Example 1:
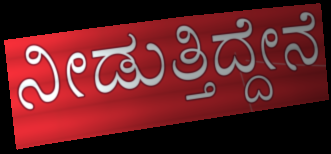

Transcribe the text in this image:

ನೀಡುತ್ತಿದ್ದೇನೆ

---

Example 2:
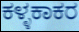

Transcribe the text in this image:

ಕಳ್ಳಕಾಕರ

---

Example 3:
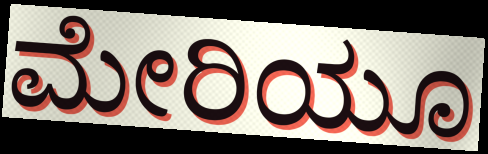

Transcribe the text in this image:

ಮೇರಿಯೂ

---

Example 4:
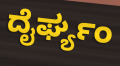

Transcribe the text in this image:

ದೈರ್ಘ್ಯಂ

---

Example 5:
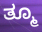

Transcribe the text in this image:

ತ್ಮೂ